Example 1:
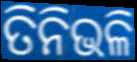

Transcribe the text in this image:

ତିନିଭଳି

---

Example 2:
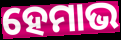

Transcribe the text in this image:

ହେମାଭ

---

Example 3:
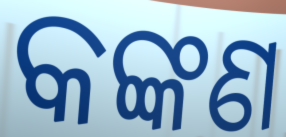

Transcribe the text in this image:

କଙ୍କଣ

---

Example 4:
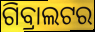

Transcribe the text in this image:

ଗିବ୍ରାଲଟର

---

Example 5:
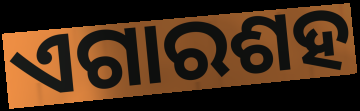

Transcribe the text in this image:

ଏଗାରଶହ